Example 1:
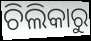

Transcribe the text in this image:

ଚିଲିକାରୁ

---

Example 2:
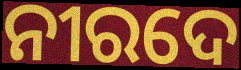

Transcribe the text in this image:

ନୀରଦେ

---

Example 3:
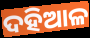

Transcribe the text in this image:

ଦହିଆଳ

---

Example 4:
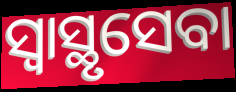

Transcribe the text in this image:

ସ୍ୱାସ୍ଥୃସେବା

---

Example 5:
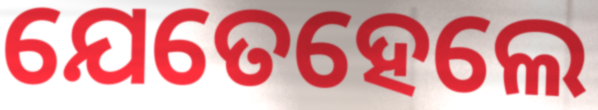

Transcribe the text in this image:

ଯେତେହେଲେ